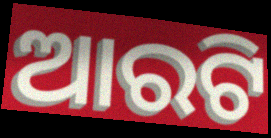
ଆରଟି